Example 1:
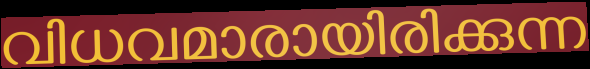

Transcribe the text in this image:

വിധവമാരായിരിക്കുന്ന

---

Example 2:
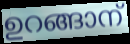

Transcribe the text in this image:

ഉറങ്ങാന്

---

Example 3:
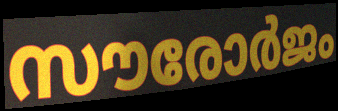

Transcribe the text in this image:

സൗരോർജം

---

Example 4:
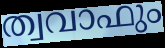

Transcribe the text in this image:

ത്വവാഫും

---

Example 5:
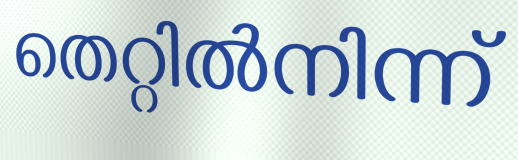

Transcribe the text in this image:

തെറ്റിൽനിന്ന്